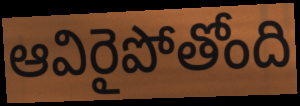
ఆవిరైపోతోంది